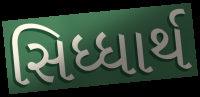
સિધ્ધાર્થ